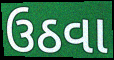
ઉઠવા